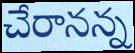
చేరానన్న